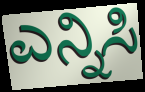
ಎನ್ನಿಸಿ